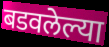
बडवलेल्या